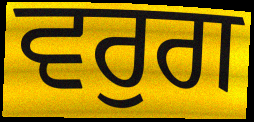
ਵਰੁਗ